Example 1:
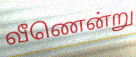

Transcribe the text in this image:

வீணென்று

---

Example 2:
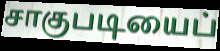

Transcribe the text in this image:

சாகுபடியைப்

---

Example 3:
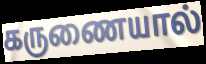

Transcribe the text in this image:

கருணையால்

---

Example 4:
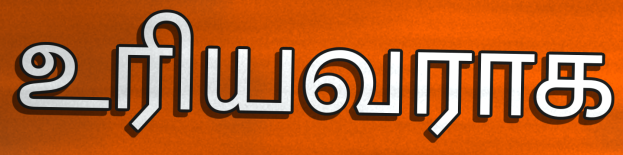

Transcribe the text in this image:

உரியவராக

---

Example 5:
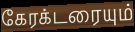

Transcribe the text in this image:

கேரக்டரையும்